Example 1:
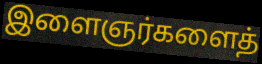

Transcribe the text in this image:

இளைஞர்களைத்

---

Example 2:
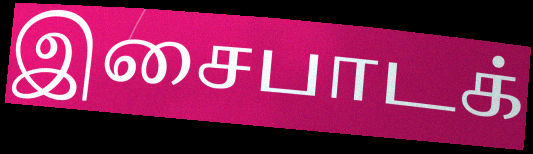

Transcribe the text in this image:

இசைபாடக்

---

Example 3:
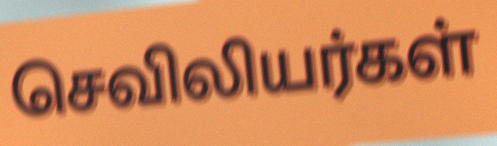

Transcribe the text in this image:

செவிலியர்கள்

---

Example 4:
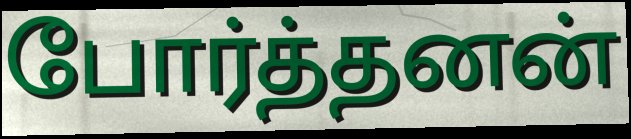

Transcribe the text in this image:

போர்த்தனன்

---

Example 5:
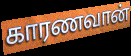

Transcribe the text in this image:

காரணவான்